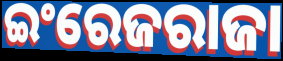
ଇଂରେଜରାଜା